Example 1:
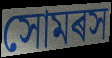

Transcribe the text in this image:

সোমৰস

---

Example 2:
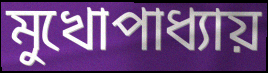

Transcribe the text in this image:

মুখোপাধ্যায়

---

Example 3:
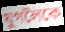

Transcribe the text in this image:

যুগলৈকে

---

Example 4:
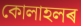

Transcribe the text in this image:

কোলাহলৰ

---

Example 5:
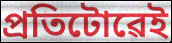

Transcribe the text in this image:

প্ৰতিটোৱেই